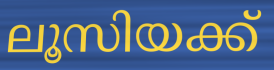
ലൂസിയക്ക്